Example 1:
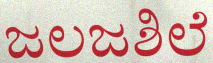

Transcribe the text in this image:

ಜಲಜಶಿಲೆ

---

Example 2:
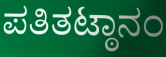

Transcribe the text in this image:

ಪತಿತಟ್ಠಾನಂ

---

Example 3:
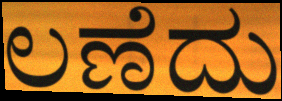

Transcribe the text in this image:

ಲಣೆದು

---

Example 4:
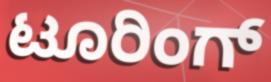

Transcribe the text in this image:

ಟೂರಿಂಗ್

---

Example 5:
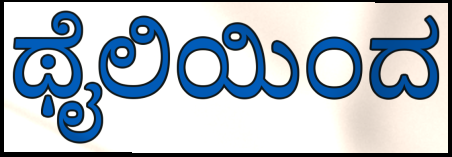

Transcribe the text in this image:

ಥೈಲಿಯಿಂದ